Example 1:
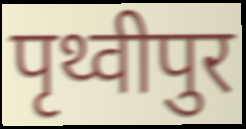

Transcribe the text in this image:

पृथ्वीपुर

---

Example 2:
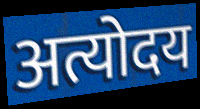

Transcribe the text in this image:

अत्योदय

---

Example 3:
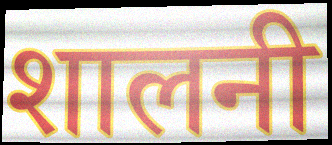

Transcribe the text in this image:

शालनी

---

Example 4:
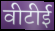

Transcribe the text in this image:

वीटीई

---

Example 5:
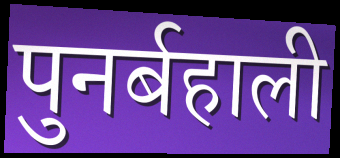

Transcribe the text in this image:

पुनर्बहाली